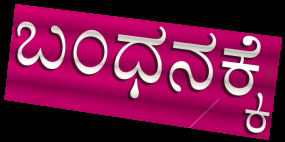
ಬಂಧನಕ್ಕೆ